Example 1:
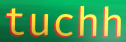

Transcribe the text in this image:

tuchh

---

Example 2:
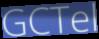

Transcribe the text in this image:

GCTel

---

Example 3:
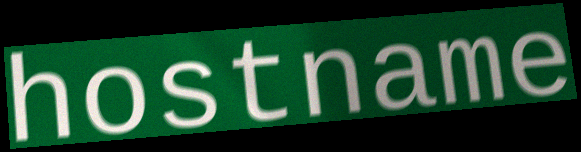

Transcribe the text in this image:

hostname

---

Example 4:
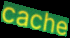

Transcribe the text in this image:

cache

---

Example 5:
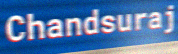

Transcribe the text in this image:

Chandsuraj